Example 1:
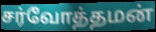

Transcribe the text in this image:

சர்வோத்தமன்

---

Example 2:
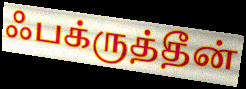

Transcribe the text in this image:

ஃபக்ருத்தீன்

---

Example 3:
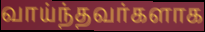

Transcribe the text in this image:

வாய்ந்தவர்களாக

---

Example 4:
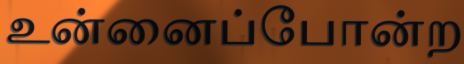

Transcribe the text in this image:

உன்னைப்போன்ற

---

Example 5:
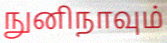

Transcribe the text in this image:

நுனிநாவும்